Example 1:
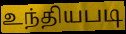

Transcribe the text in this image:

உந்தியபடி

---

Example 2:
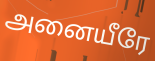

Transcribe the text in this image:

அனையீரே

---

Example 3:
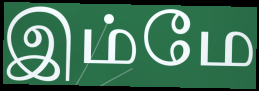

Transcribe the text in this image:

இம்மே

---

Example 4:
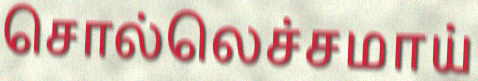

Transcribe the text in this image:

சொல்லெச்சமாய்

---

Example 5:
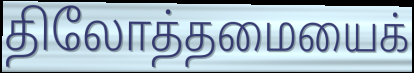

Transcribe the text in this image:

திலோத்தமையைக்